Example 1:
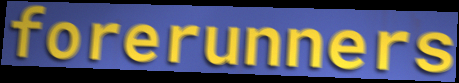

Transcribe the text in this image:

forerunners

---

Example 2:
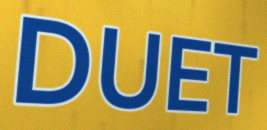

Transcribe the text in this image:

DUET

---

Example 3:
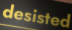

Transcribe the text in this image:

desisted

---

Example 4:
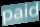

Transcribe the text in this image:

paid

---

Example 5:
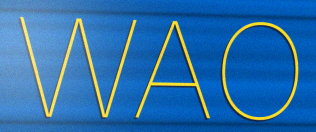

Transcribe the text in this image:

WAO